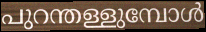
പുറന്തള്ളുമ്പോൾ